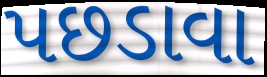
પછડાવા